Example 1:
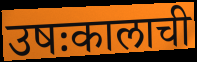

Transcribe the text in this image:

उषःकालाची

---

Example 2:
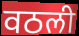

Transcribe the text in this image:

वठली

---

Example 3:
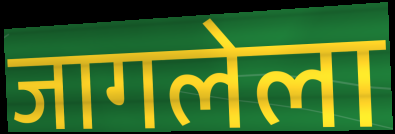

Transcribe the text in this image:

जागलेला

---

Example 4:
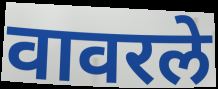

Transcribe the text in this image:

वावरले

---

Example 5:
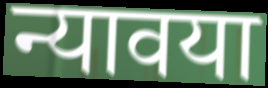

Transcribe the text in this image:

न्यावया